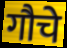
गौचे